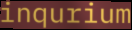
inqurium